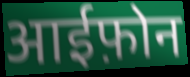
आईफ़ोन